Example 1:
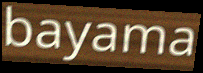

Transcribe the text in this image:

bayama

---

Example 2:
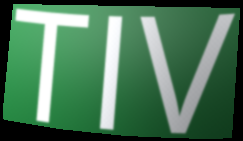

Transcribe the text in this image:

TIV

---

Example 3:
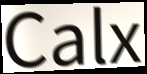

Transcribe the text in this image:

Calx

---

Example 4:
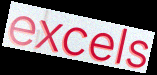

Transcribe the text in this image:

excels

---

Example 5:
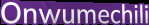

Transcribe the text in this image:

Onwumechili